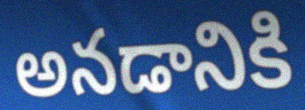
అనడానికి